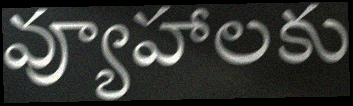
వ్యూహాలకు